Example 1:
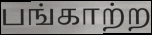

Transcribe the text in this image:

பங்காற்ற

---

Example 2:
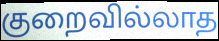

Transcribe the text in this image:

குறைவில்லாத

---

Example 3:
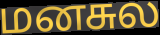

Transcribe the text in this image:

மனசுல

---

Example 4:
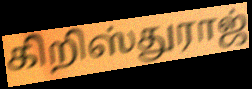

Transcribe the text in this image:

கிறிஸ்துராஜ்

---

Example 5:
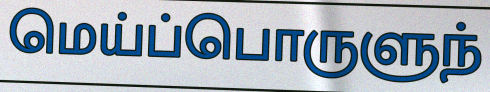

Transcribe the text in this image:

மெய்ப்பொருளுந்